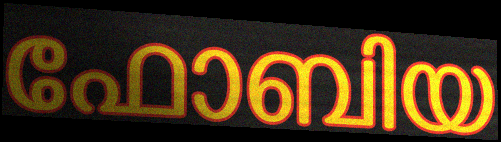
ഫോബിയ